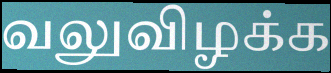
வலுவிழக்க